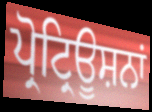
ਪ੍ਰੋਟ੍ਰਿਊਸ਼ਨਾਂ